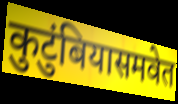
कुटुंबियासमवेत